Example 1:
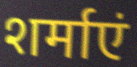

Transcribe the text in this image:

शर्माएं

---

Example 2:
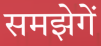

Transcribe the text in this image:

समझेगें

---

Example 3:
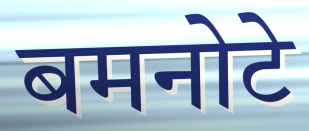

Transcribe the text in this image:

बमनोटे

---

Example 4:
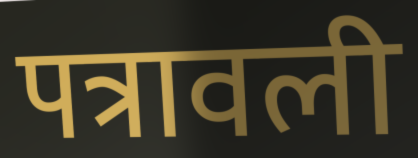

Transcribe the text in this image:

पत्रावली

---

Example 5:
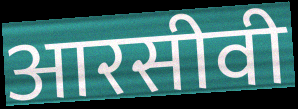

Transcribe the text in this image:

आरसीवी